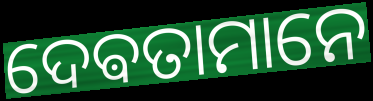
ଦେଵତାମାନେ